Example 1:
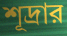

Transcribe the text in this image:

শূদ্রার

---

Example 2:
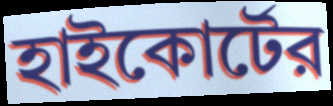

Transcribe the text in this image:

হাইকোর্টের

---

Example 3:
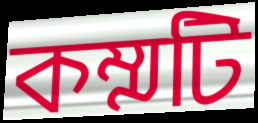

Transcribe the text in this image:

কম্মটি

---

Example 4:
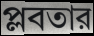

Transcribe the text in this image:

প্লবতার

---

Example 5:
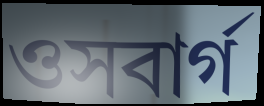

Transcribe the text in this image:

ওসবার্গ